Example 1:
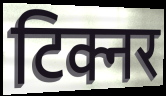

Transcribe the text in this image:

टिक्नर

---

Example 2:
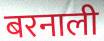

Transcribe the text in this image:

बरनाली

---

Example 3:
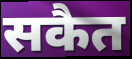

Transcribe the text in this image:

सकैत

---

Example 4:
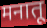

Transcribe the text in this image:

मनातू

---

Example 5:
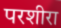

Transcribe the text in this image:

परशीरा